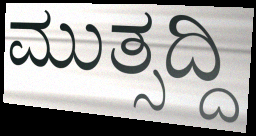
ಮುತ್ಸದ್ದಿ